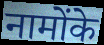
नामोंके